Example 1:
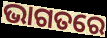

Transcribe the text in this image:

ଭାଗତରେ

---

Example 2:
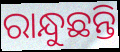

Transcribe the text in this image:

ରାନ୍ଧୁଛନ୍ତି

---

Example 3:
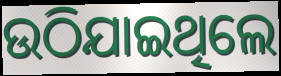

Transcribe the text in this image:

ଉଠିଯାଇଥିଲେ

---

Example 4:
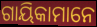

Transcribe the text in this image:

ଗାୟିକାମାନେ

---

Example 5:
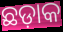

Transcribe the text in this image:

ଛଡ଼ାକ